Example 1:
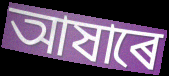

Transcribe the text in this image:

আষাৰে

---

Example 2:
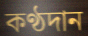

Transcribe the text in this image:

কণ্ঠদান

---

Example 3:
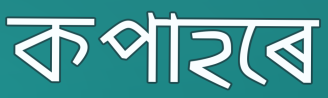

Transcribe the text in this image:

কপাহৰে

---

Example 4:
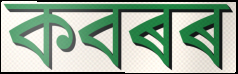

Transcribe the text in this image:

কবৰৰ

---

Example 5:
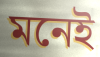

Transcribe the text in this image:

মনেই